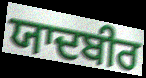
ਯਾਦਬੀਰ